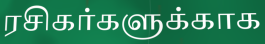
ரசிகர்களுக்காக